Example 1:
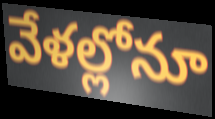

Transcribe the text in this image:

వేళల్లోనూ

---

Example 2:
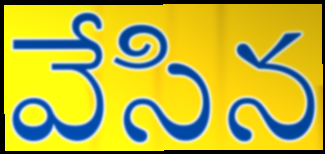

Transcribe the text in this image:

వేసిన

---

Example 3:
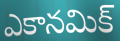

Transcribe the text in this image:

ఎకానమిక్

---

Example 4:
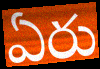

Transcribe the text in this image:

ఏరు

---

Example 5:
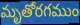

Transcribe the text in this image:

మృతోరగముం